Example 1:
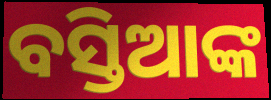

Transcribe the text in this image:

ବସ୍ତିଆଙ୍କ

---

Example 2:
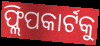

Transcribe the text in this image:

ଫ୍ଲିପକାର୍ଟକୁ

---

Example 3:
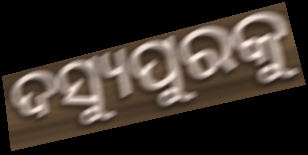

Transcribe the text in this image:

ଦସ୍ୟୁପୁରକୁ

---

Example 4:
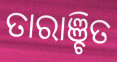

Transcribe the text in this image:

ତାରାଞ୍ଚିତ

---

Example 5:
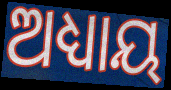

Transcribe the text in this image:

ଅଧ୍ୟାୟ